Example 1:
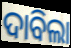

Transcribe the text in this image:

ଦାବିଲା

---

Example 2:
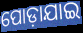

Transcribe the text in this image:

ପୋଡ଼ାଯାଇ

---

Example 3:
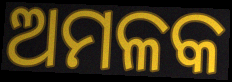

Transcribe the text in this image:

ଅମଳକ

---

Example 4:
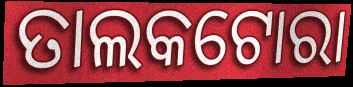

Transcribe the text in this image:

ତାଲକଟୋରା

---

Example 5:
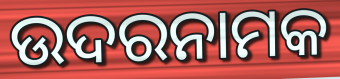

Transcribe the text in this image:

ଉଦରନାମକ